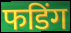
फडिंग